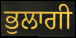
ਭੁਲਾਗੀ